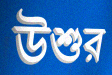
উশুর